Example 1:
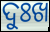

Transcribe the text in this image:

ଦୁଃଖ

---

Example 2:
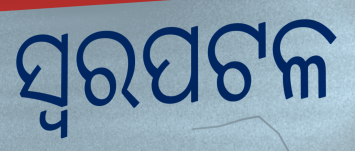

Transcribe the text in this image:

ସ୍ୱରପଟଳ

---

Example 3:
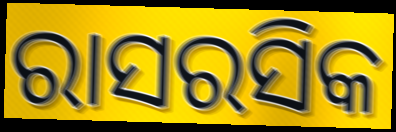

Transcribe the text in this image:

ରାସରସିକ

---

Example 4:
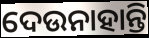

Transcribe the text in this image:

ଦେଉନାହାନ୍ତି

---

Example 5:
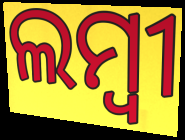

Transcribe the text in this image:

ଲମ୍ବୀ